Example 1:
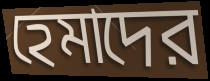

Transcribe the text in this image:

হেমাদের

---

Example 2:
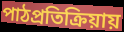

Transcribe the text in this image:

পাঠপ্রতিক্রিয়ায়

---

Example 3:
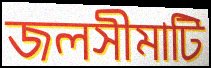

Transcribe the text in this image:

জলসীমাটি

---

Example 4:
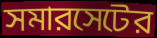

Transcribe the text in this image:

সমারসেটের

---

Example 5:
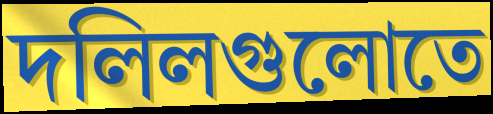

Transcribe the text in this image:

দলিলগুলোতে